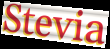
Stevia